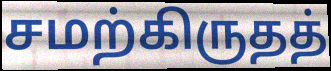
சமற்கிருதத்